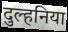
दुल्हनिया